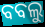
ବବଲୁ